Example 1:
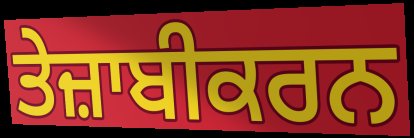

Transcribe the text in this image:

ਤੇਜ਼ਾਬੀਕਰਨ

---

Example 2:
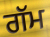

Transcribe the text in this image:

ਗੱਮ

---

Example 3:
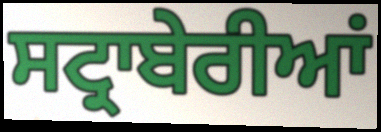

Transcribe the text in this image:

ਸਟ੍ਰਾਬੇਰੀਆਂ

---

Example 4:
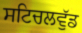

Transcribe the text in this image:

ਸਟਿਚਲਵੁੱਡ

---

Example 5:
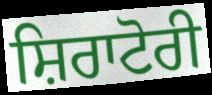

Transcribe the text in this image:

ਸ਼ਿਰਾਟੋਰੀ